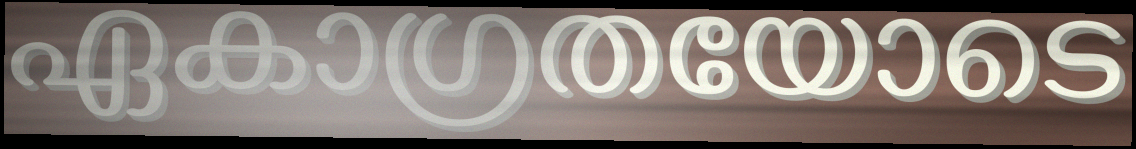
ഏകാഗ്രതയോടെ